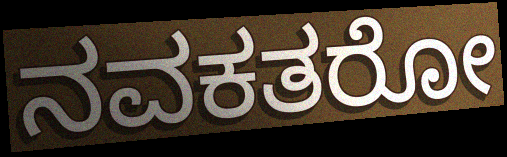
ನವಕತರೋ